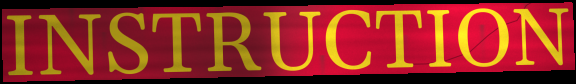
INSTRUCTION